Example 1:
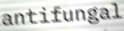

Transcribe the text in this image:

antifungal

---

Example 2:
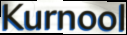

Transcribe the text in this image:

Kurnool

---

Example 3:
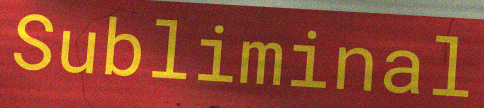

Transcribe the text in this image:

Subliminal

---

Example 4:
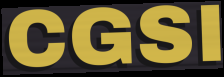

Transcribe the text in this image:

CGSI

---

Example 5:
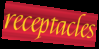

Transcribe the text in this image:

receptacles